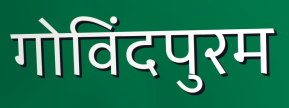
गोविंदपुरम